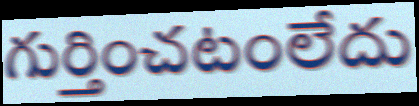
గుర్తించటంలేదు